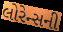
લોરેન્સની